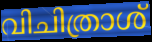
വിചിത്രാശ്